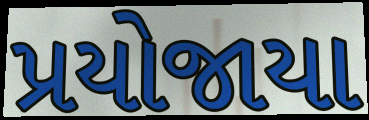
પ્રયોજાયા